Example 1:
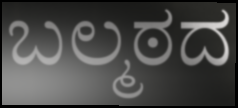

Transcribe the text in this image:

ಬಲ್ಮಠದ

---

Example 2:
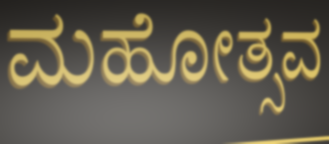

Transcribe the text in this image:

ಮಹೋತ್ಸವ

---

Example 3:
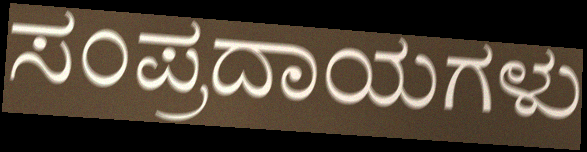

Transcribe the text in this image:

ಸಂಪ್ರದಾಯಗಳು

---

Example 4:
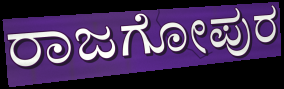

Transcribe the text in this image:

ರಾಜಗೋಪುರ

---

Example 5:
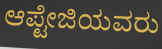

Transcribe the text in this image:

ಆಪ್ಟೇಜಿಯವರು